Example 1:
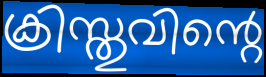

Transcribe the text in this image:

ക്രിസ്തുവിന്റെ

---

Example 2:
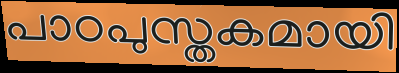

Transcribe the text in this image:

പാഠപുസ്തകമായി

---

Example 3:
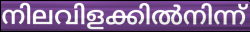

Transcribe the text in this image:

നിലവിളക്കിൽനിന്ന്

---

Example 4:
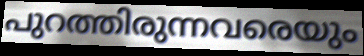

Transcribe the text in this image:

പുറത്തിരുന്നവരെയും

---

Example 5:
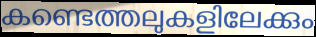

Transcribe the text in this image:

കണ്ടെത്തലുകളിലേക്കും